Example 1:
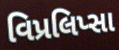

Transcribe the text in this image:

વિપ્રલિપ્સા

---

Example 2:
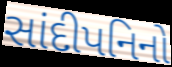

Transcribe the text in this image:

સાંદીપનિનો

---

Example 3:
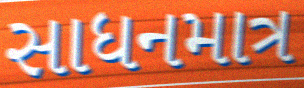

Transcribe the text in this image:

સાધનમાત્ર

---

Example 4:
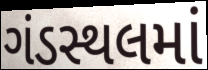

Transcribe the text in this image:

ગંડસ્થલમાં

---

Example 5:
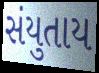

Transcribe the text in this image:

સંયુતાય